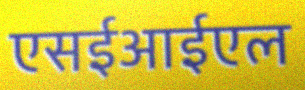
एसईआईएल